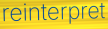
reinterpret